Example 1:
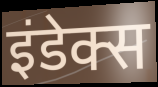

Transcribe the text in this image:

इंडेक्स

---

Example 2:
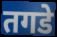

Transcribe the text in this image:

तगडे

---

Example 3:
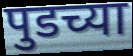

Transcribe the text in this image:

पुडच्या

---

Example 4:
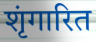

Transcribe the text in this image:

शृंगारित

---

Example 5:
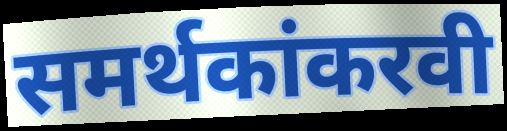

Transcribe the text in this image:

समर्थकांकरवी